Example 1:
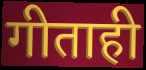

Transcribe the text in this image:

गीताही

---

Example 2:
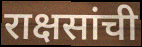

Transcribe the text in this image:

राक्षसांची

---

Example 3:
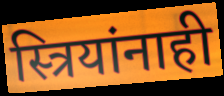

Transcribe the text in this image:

स्त्रियांनाही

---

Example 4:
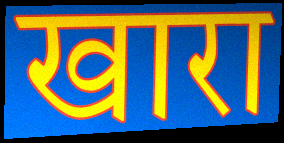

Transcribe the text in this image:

खारा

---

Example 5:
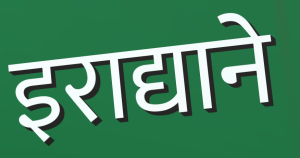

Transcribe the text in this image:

इराद्याने